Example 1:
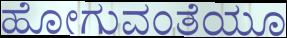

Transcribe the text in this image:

ಹೋಗುವಂತೆಯೂ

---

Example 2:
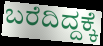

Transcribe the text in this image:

ಬರೆದಿದ್ದಕ್ಕೆ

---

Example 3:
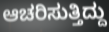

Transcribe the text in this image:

ಆಚರಿಸುತ್ತಿದ್ದು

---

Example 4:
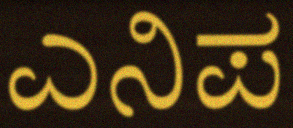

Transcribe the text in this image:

ಎನಿಪ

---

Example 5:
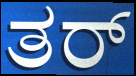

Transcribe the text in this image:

ತರ್